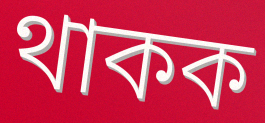
থাকক